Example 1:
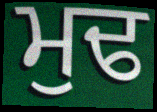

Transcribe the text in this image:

ਮੁਢ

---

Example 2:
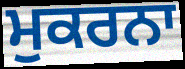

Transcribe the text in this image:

ਮੁਕਰਨਾ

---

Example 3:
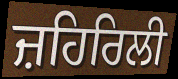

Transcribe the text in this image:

ਜ਼ਹਿਰਿਲੀ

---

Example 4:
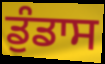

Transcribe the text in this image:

ਡੁੰਡਾਸ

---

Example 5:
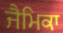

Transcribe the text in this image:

ਜੈਮਿਕਾ